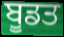
ਬੂਡਤ